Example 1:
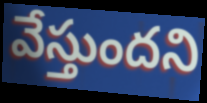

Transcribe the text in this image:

వేస్తుందని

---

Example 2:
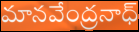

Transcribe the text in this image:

మానవేంద్రనాధ్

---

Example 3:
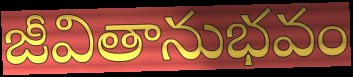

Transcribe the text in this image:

జీవితానుభవం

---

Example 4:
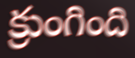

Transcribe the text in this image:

క్రుంగింది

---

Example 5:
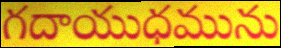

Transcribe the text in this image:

గదాయుధమును